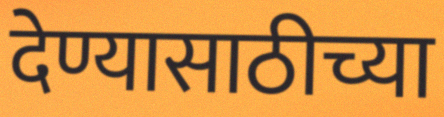
देण्यासाठीच्या